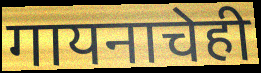
गायनाचेही